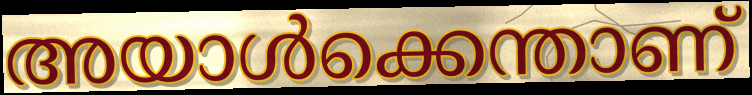
അയാൾക്കെന്താണ്